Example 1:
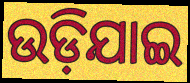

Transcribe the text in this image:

ଉଡ଼ିଯାଇ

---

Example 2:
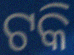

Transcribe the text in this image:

ଟକି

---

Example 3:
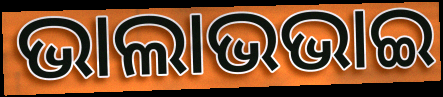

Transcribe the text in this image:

ଭାଲାଭଭାଇ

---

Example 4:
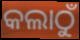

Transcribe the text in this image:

କଲାଠୁଁ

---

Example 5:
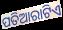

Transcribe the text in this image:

ପତିଆରାଟିଏ